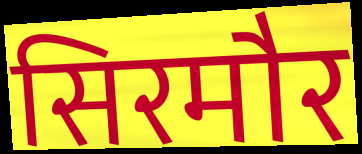
सिरमौर